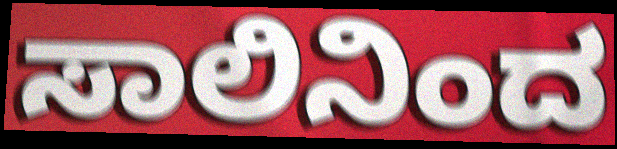
ಸಾಲಿನಿಂದ